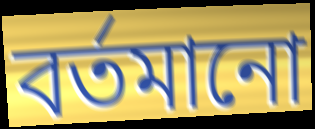
বৰ্তমানো